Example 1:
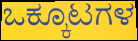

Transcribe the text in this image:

ಒಕ್ಕೂಟಗಳ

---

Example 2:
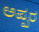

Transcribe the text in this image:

ಅಪ್ಪರ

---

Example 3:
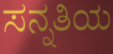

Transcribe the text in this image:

ಸನ್ನತಿಯ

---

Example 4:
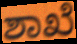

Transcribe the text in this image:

ಶಾಖೆ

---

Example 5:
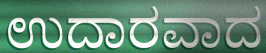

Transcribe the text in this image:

ಉದಾರವಾದ